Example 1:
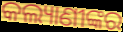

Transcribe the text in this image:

କଲ୍ୟାଣୀଙ୍କର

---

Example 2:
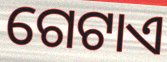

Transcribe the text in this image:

ଗେଟାଏ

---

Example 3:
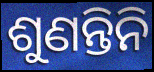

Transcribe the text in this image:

ଶୁଣନ୍ତିନି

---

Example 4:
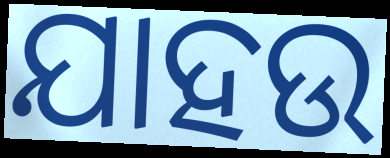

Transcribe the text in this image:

ଯାହଉ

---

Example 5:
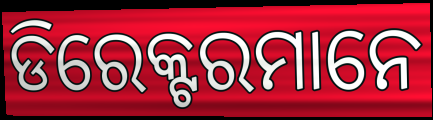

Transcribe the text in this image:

ଡିରେକ୍ଟରମାନେ